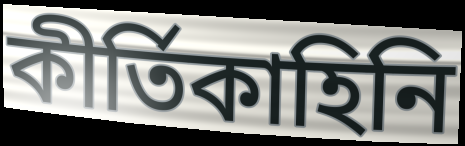
কীর্তিকাহিনি